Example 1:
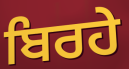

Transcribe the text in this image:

ਬਿਰਹੇ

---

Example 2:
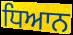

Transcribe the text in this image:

ਧਿਆਨ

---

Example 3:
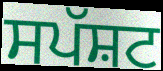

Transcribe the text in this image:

ਸਪੱਸ਼ਟ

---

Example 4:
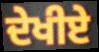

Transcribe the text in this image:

ਦੇਖੀਏ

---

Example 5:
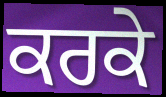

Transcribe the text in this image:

ਕਰਕੇ